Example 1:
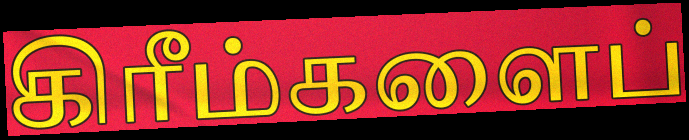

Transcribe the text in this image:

கிரீம்களைப்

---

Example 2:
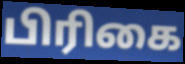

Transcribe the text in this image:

பிரிகை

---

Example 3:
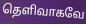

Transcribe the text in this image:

தெளிவாகவே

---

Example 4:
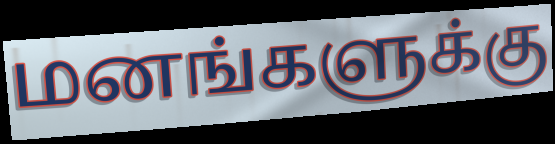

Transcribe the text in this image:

மனங்களுக்கு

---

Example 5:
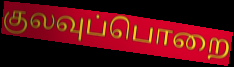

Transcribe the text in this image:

குலவுப்பொறை